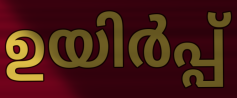
ഉയിർപ്പ്